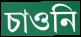
চাওনি